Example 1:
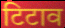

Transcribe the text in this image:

टिटाव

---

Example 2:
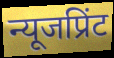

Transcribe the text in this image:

न्यूजप्रिंट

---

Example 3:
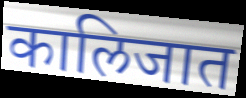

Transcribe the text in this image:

कालिजात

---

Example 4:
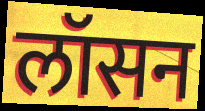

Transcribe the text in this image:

लॉसन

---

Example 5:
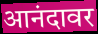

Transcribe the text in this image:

आनंदावर